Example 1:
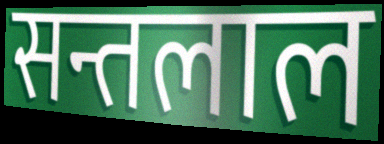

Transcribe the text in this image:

सन्तलाल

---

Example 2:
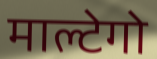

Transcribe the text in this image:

माल्टेगो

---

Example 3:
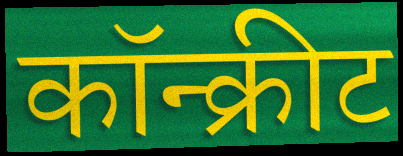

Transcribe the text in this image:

कॉन्क्रीट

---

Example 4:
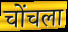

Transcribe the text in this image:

चोंचला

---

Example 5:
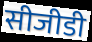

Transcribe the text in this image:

सीजीडी